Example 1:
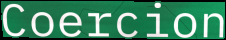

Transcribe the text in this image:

Coercion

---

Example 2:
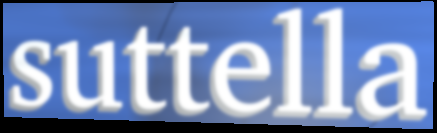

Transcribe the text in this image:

suttella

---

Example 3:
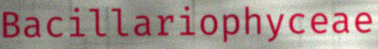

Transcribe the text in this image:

Bacillariophyceae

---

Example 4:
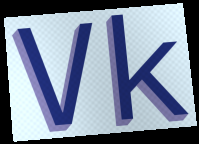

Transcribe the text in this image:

Vk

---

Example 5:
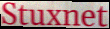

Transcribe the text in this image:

Stuxnet